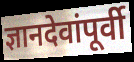
ज्ञानदेवांपूर्वी